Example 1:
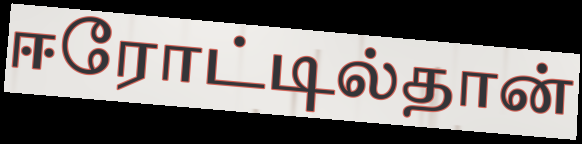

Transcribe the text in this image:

ஈரோட்டில்தான்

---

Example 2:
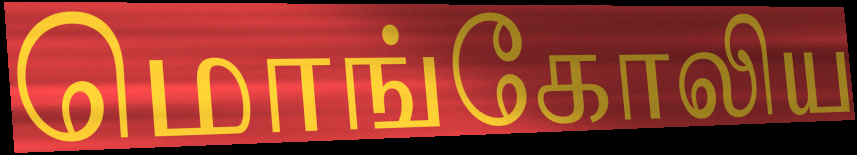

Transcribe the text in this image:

மொங்கோலிய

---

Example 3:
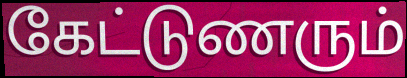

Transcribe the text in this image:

கேட்டுணரும்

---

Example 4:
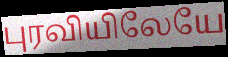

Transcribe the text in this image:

புரவியிலேயே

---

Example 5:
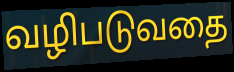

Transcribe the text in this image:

வழிபடுவதை